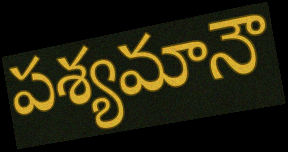
పశ్యమానౌ